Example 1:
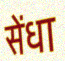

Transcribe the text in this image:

सेंधा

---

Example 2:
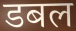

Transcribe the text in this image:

डबल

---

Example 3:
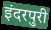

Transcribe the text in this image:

इंदरपुरी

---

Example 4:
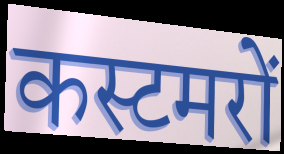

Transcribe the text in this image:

कस्टमरों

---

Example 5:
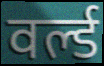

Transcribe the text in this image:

वर्ल्‍ड